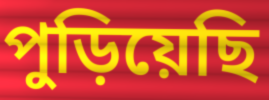
পুড়িয়েছি